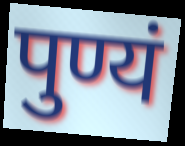
पुण्यं